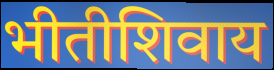
भीतीशिवाय